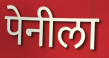
पेनीला